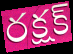
రక్షక్